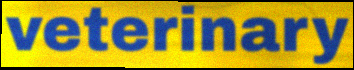
veterinary